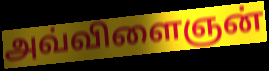
அவ்விளைஞன்